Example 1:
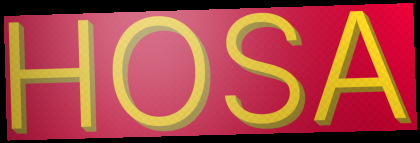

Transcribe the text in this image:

HOSA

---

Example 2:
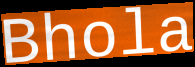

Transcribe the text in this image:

Bhola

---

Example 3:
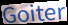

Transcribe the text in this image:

Goiter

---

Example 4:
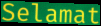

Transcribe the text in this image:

Selamat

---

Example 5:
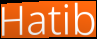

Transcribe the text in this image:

Hatib